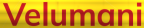
Velumani